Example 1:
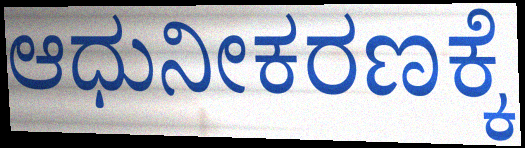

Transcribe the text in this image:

ಆಧುನೀಕರಣಕ್ಕೆ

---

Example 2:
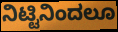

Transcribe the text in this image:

ನಿಟ್ಟಿನಿಂದಲೂ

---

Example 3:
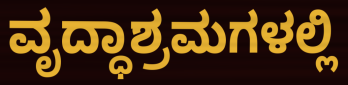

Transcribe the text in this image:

ವೃದ್ಧಾಶ್ರಮಗಳಲ್ಲಿ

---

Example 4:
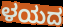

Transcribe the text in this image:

ಳಯದ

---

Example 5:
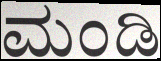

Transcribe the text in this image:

ಮಂಡಿ